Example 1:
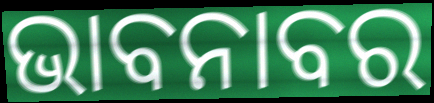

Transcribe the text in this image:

ଭାବନାବର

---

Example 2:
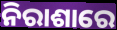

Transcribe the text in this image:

ନିରାଶାରେ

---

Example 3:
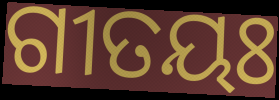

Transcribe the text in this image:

ଗୀତୟଃ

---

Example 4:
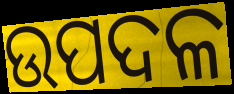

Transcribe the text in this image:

ଉପଦଳ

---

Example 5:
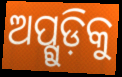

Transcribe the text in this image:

ଅପ୍ଗୁଡ଼ିକୁ